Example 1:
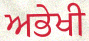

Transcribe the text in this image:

ਅਭੇਖੀ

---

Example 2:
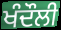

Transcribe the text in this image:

ਖੰਦੌਲੀ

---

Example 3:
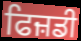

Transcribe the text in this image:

ਫਿਜ਼ਡੀ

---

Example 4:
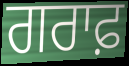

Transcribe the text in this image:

ਗਰਾਫ਼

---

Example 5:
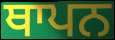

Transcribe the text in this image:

ਥਾਪਨ